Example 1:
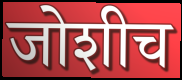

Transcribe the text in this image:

जोशीच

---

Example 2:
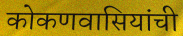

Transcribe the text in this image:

कोकणवासियांची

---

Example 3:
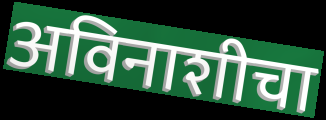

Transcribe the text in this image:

अविनाशीचा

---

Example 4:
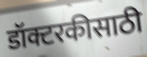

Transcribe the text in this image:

डॉक्टरकीसाठी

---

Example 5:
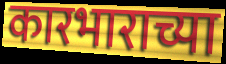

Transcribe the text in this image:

कारभाराच्या